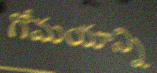
గోమయాన్ని